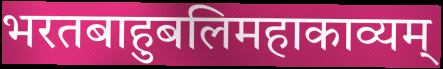
भरतबाहुबलिमहाकाव्यम्